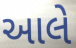
આલે